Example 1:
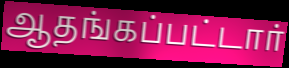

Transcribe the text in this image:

ஆதங்கப்பட்டார்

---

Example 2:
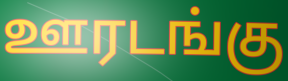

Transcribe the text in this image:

ஊரடங்கு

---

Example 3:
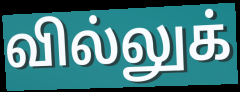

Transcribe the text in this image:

வில்லுக்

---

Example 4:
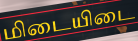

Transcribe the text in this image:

மிடையிடை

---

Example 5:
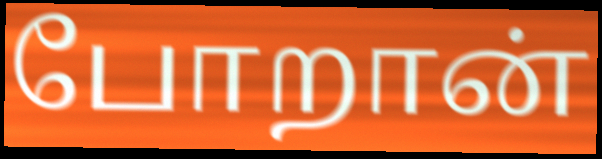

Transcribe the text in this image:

போறான்